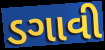
ડગાવી